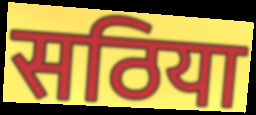
सठिया